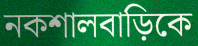
নকশালবাড়িকে